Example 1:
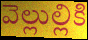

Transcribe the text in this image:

వెల్లుల్లికి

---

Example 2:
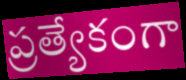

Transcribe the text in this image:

ప్రత్యేకంగా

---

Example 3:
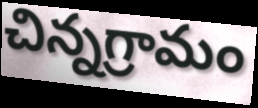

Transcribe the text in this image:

చిన్నగ్రామం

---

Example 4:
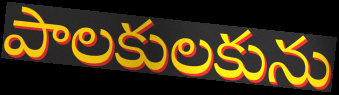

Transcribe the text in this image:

పాలకులకును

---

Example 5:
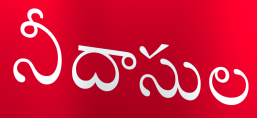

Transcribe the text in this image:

నీదాసుల